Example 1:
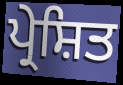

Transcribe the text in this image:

ਪ੍ਰੇਸ਼ਿਤ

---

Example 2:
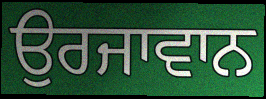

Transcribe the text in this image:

ਉਰਜਾਵਾਨ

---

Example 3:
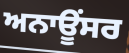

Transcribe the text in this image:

ਅਨਾਊਂਸਰ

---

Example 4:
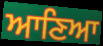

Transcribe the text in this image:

ਆਣਿਆ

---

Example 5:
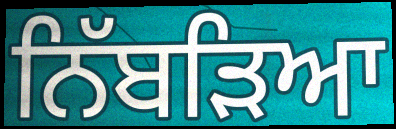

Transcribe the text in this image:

ਨਿੱਬੜਿਆ